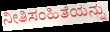
ನೀತಿಸಂಹಿತೆಯನ್ನು